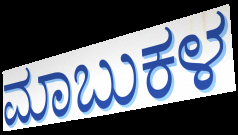
ಮಾಬುಕಳ